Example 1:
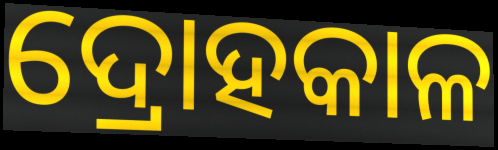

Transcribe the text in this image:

ଦ୍ରୋହକାଳ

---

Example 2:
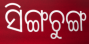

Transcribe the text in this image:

ସିଙ୍ଗଚୁଙ୍ଗ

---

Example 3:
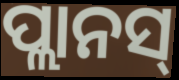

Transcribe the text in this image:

ପ୍ଲାନସ୍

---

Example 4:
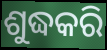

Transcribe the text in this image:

ଶୁଦ୍ଧକରି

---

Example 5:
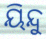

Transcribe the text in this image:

ୟିନ୍ଦୁ